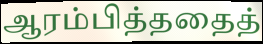
ஆரம்பித்ததைத்